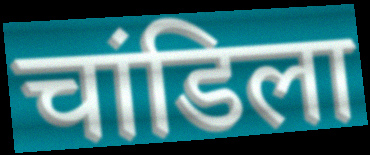
चांडिला